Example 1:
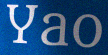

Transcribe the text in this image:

Yao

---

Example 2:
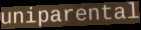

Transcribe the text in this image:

uniparental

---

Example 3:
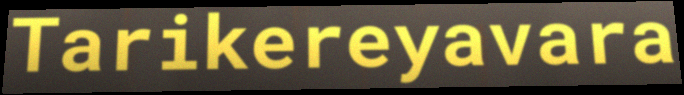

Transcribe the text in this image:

Tarikereyavara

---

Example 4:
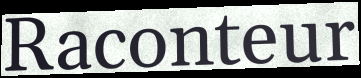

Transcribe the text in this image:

Raconteur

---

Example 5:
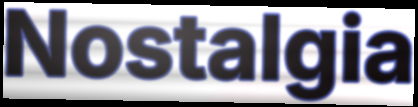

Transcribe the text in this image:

Nostalgia